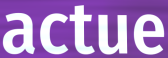
actue